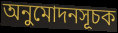
অনুমোদনসূচক